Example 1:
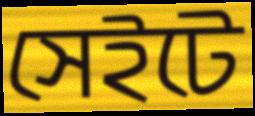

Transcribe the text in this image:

সেইটে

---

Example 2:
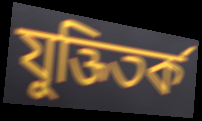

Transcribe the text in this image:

যুক্তিতর্ক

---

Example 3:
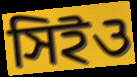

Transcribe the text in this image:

সিইও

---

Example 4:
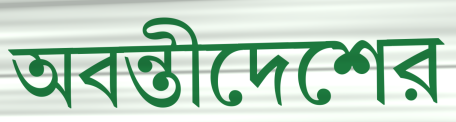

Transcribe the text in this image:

অবন্তীদেশের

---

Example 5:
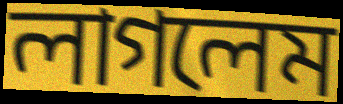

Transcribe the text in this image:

লাগলেম